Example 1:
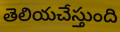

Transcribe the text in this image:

తెలియచేస్తుంది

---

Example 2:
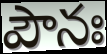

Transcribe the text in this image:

పౌనః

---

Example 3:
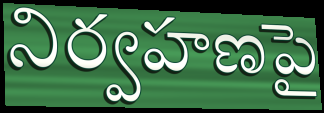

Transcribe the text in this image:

నిర్వహణపై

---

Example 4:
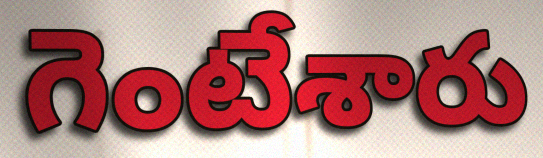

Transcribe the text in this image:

గెంటేశారు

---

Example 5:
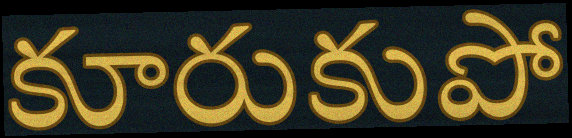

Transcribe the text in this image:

కూరుకుపో